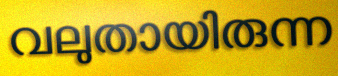
വലുതായിരുന്ന